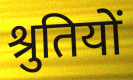
श्रुतियों